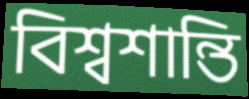
বিশ্বশান্তি